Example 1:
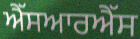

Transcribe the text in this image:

ਐੱਸਆਰਐੱਸ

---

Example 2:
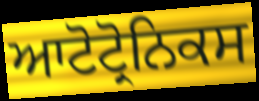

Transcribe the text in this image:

ਆਟੋਟ੍ਰੋਨਿਕਸ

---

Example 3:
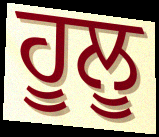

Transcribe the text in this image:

ਹੂਲੂ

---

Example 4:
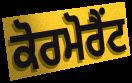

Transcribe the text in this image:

ਕੋਰਮੋਰੈਂਟ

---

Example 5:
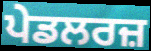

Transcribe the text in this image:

ਪੇਡਲਰਜ਼